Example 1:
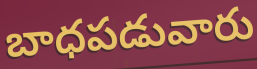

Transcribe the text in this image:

బాధపడువారు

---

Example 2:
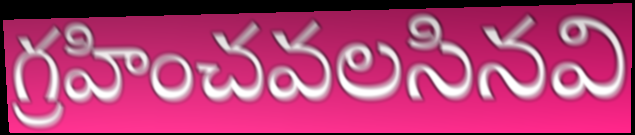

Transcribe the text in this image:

గ్రహించవలసినవి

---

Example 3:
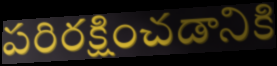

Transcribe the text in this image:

పరిరక్షించడానికి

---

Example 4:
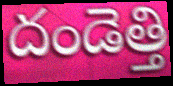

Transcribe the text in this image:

దండెత్తి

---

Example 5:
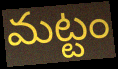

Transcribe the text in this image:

మట్టం